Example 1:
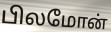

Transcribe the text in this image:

பிலமோன்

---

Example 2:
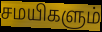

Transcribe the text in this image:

சமயிகளும்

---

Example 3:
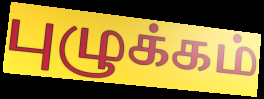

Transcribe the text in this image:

புழுக்கம்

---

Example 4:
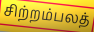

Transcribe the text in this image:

சிற்றம்பலத்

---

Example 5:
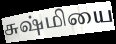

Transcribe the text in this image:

சுஷ்மியை